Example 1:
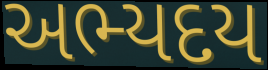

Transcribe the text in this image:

અભ્યદય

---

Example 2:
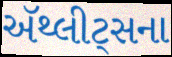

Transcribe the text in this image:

ઍથ્લીટ્સના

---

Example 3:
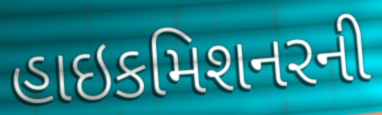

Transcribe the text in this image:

હાઇકમિશનરની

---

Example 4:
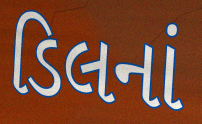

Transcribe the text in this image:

ડિલનાં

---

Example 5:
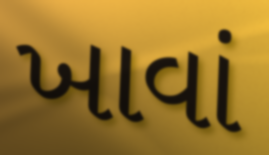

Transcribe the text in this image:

ખાવાં